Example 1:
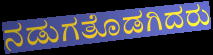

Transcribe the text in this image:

ನಡುಗತೊಡಗಿದರು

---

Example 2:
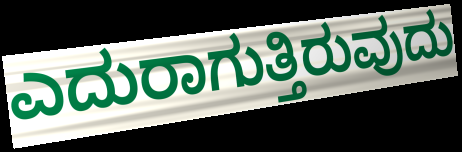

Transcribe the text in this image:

ಎದುರಾಗುತ್ತಿರುವುದು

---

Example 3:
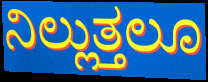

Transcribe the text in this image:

ನಿಲ್ಲುತ್ತಲೂ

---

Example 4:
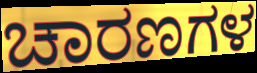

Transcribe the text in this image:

ಚಾರಣಗಳ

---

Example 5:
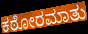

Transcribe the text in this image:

ಕಠೋರಮಾತು